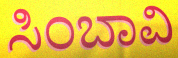
ಸಿಂಬಾವಿ